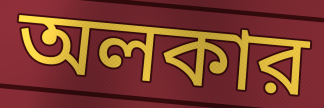
অলকার